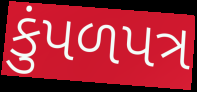
કુંપળપત્ર